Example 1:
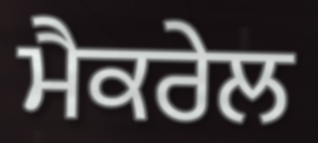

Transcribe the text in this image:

ਮੈਕਰੇਲ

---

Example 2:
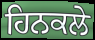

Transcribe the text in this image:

ਹਿਨਕਲੇ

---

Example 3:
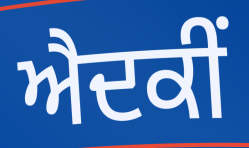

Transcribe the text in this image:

ਐਦਕੀਂ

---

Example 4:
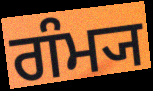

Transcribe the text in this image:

ਗੰਮ੍ਯ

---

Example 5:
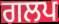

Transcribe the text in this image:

ਗਲਪ